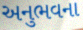
અનુભવના